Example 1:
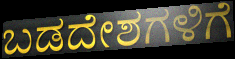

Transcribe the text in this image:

ಬಡದೇಶಗಳಿಗೆ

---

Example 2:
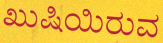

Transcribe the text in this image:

ಖುಷಿಯಿರುವ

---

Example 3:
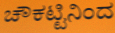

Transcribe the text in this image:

ಚೌಕಟ್ಟಿನಿಂದ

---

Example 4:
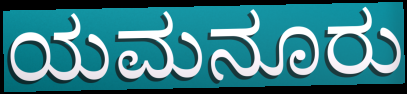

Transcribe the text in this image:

ಯಮನೂರು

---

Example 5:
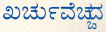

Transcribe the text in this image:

ಖರ್ಚುವೆಚ್ಚದ